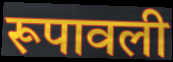
रूपावली